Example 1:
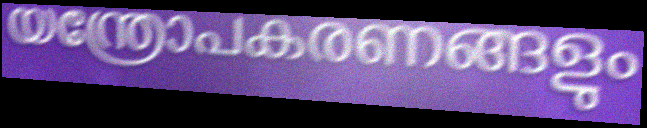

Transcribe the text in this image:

യന്ത്രോപകരണങ്ങളും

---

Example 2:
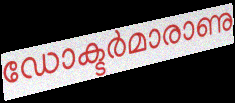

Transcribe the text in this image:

ഡോക്ടർമാരാണു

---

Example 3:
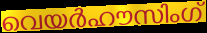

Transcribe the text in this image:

വെയർഹൗസിംഗ്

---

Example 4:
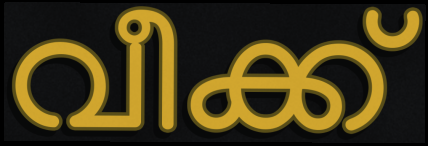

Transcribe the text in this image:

വീക്ക്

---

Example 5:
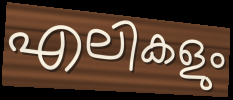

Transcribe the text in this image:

എലികളും